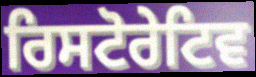
ਰਿਸਟੋਰੇਟਿਵ